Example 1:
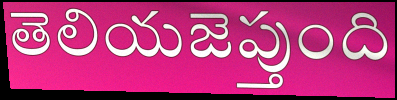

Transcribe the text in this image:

తెలియజెప్తుంది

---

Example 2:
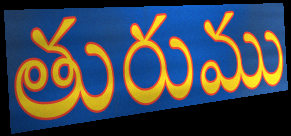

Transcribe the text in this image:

తురుము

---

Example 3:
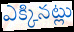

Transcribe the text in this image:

ఎక్కినట్లు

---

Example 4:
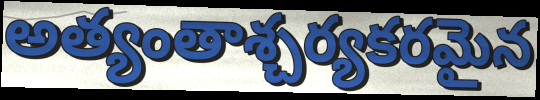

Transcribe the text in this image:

అత్యంతాశ్చర్యకరమైన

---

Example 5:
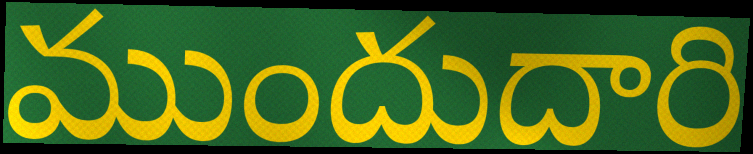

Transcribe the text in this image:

ముందుదారి